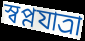
স্বপ্নযাত্রা